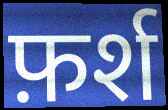
फ़र्श